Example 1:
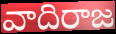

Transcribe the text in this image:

వాదిరాజ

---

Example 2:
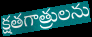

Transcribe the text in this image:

క్షతగాత్రులను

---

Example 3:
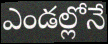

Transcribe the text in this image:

ఎండల్లోనే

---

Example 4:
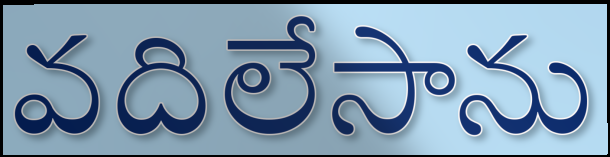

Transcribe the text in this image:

వదిలేసాను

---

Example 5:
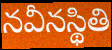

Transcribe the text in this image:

నవీనస్థితి